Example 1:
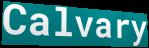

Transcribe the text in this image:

Calvary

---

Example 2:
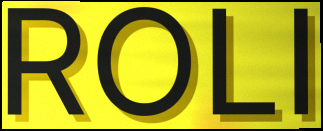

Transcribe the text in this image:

ROLI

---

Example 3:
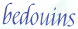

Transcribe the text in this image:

bedouins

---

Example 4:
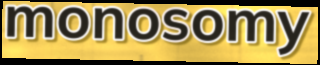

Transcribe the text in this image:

monosomy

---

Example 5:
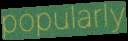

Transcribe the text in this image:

popularly